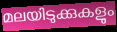
മലയിടുക്കുകളും